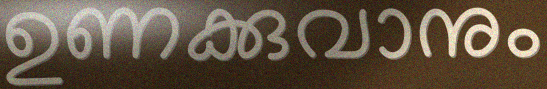
ഉണക്കുവാനും